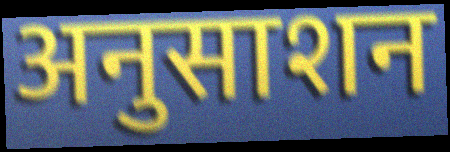
अनुसाशन